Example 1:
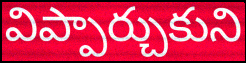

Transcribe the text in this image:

విప్పార్చుకుని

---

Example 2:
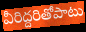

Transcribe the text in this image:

వీరిద్దరితోపాటు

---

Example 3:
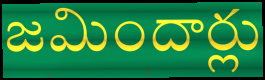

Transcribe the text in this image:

జమిందార్లు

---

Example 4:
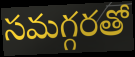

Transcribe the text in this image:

సమగ్గరతో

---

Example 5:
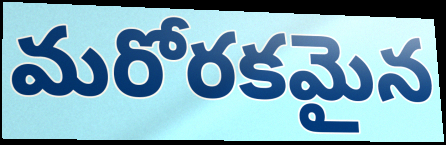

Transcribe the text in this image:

మరోరకమైన